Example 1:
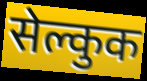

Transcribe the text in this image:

सेल्कुक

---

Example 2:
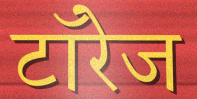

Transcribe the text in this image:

टॉरेज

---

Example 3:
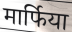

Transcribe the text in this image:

मार्फिया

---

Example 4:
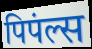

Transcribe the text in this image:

पिपंल्स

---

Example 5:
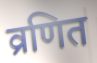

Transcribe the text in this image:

व्रणित